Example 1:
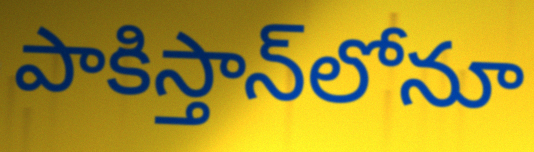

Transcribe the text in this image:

పాకిస్తాన్‌లోనూ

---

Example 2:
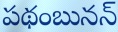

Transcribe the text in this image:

పథంబునన్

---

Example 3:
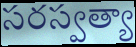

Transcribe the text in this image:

సరస్వత్యా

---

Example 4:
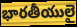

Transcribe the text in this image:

భారతీయులై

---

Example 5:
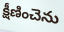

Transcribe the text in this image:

క్షీణించెను